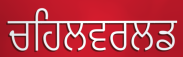
ਚਹਿਲਵਰਲਡ